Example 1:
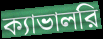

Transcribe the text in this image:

ক্যাভালরি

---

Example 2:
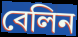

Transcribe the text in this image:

বেলিন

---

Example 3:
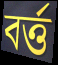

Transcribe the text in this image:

বর্ত্ত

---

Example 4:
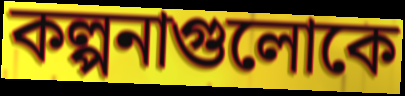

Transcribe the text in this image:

কল্পনাগুলোকে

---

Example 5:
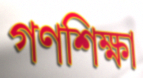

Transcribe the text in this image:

গণশিক্ষা